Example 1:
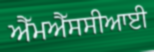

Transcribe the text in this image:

ਐੱਮਐੱਸਸੀਆਈ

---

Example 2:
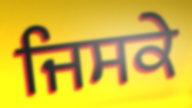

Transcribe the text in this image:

ਜਿਸਕੇ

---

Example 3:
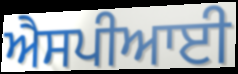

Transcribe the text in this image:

ਐਸਪੀਆਈ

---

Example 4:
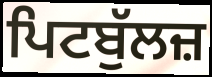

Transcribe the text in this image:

ਪਿਟਬੁੱਲਜ਼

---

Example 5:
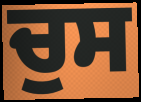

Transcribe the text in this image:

ਚੁਸ